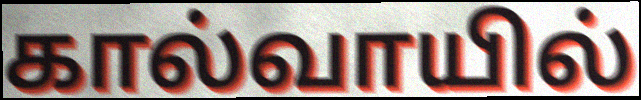
கால்வாயில்